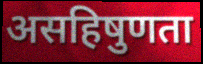
असहिषुणता